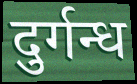
दुर्गन्ध